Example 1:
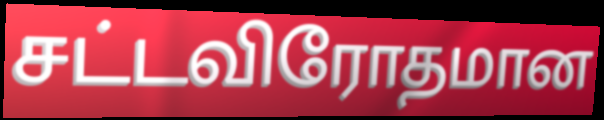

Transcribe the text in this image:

சட்டவிரோதமான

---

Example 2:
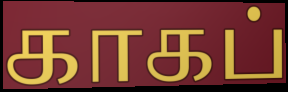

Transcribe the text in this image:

காகப்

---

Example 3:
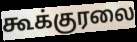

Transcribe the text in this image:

கூக்குரலை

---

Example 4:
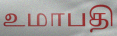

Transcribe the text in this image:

உமாபதி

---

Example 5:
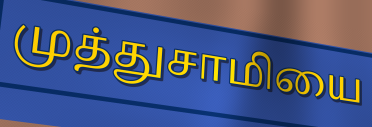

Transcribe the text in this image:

முத்துசாமியை